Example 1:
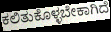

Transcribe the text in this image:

ಕಲಿತುಕೊಳ್ಳಬೇಕಾಗಿದೆ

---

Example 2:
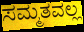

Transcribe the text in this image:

ಸಮ್ಮತವಲ್ಲ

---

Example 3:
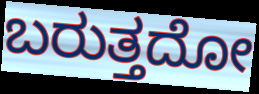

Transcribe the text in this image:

ಬರುತ್ತದೋ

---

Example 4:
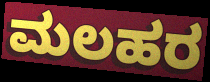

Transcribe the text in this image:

ಮಲಹರ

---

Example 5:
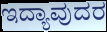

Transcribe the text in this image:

ಇದ್ಯಾವುದರ